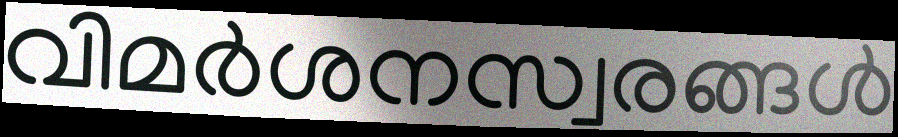
വിമർശനസ്വരങ്ങൾ